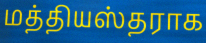
மத்தியஸ்தராக